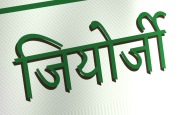
जियोर्जी